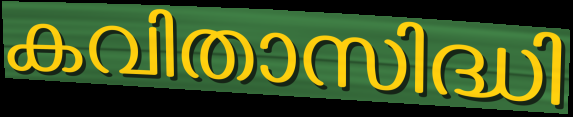
കവിതാസിദ്ധി